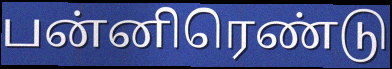
பன்னிரெண்டு